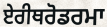
ਏਰੀਥਰੋਡਰਮਾ